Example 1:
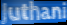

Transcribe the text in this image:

Juthani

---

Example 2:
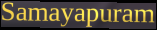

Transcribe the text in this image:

Samayapuram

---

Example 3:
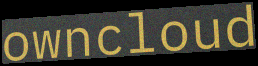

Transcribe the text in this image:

owncloud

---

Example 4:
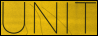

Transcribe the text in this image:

UNIT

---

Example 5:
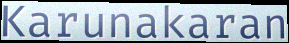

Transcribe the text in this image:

Karunakaran